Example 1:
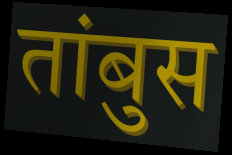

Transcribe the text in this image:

तांबुस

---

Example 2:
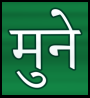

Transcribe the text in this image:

मुने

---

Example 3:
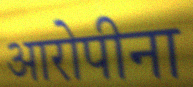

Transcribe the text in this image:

आरोपीना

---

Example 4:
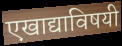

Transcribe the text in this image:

एखाद्याविषयी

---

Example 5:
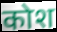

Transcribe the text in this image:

कोश